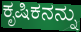
ಕೃಷಿಕನನ್ನು